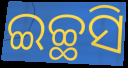
ଇଚ୍ଛସି